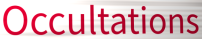
Occultations